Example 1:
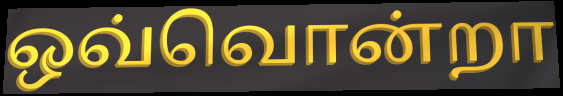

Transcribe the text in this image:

ஒவ்வொன்றா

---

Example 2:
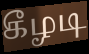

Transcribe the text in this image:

கீழடி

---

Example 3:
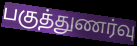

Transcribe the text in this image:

பகுத்துணர்வு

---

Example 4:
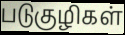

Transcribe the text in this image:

படுகுழிகள்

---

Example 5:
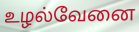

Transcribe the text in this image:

உழல்வேனை